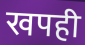
खपही